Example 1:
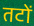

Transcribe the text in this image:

तटों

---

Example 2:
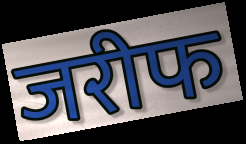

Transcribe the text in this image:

जरीफ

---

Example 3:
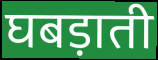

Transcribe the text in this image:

घबड़ाती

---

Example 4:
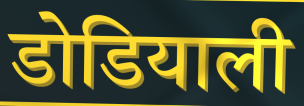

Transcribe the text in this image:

डोडियाली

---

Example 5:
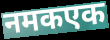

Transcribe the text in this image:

नमकएक